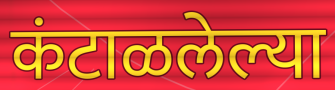
कंटाळलेल्या